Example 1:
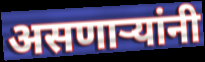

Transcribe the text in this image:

असणाऱ्यांनी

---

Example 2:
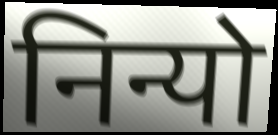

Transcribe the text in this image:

निन्यो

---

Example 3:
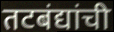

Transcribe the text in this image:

तटबंद्यांची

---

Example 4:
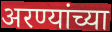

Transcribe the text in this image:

अरण्यांच्या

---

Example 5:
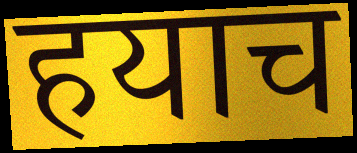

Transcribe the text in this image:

हयाच